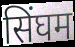
सिंघम